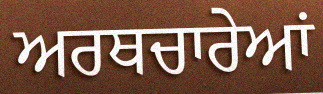
ਅਰਥਚਾਰੇਆਂ